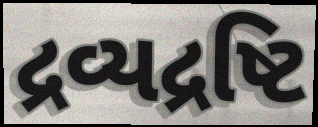
દ્રવ્યદ્રષ્ટિ